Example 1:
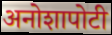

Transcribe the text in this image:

अनोशापोटी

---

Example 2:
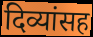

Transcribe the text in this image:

दिव्यांसह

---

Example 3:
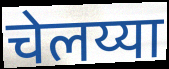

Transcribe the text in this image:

चेलय्या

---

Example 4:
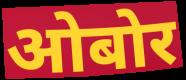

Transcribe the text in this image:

ओबोर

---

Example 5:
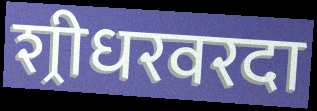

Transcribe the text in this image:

श्रीधरवरदा